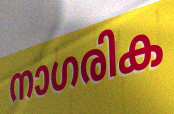
നാഗരിക